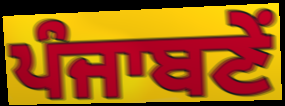
ਪੰਜਾਬਣੇਂ